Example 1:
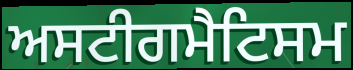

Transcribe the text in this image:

ਅਸਟੀਗਮੈਟਿਸਮ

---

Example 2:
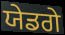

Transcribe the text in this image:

ਯੇਡਗੇ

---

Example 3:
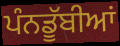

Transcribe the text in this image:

ਪੰਨਡੂੱਬੀਆਂ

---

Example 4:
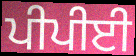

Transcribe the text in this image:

ਪੀਪੀਈ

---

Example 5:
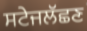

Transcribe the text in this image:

ਸਟੇਜਲੱਛਣ